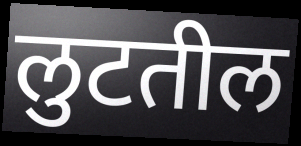
लुटतील